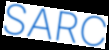
SARC